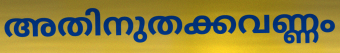
അതിനുതക്കവണ്ണം